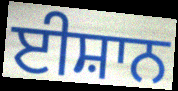
ਈਸ਼ਾਨ